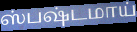
ஸ்பஷ்டமாய்